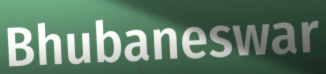
Bhubaneswar